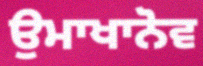
ਉਮਾਖਾਨੋਵ